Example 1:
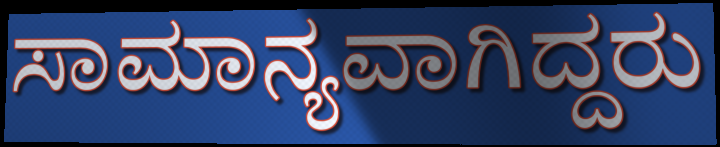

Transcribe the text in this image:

ಸಾಮಾನ್ಯವಾಗಿದ್ದರು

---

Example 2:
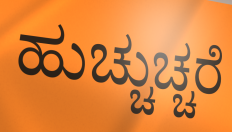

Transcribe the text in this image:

ಹುಚ್ಚುಚ್ಚರೆ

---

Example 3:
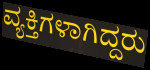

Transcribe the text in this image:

ವ್ಯಕ್ತಿಗಳಾಗಿದ್ದರು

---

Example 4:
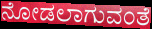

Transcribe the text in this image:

ನೋಡಲಾಗುವಂತೆ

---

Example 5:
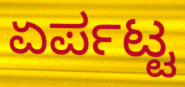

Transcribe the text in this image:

ಏರ್ಪಟ್ಟ